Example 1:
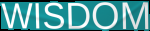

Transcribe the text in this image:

WISDOM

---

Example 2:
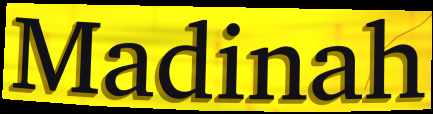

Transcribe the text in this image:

Madinah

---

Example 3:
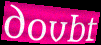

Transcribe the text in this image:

doubt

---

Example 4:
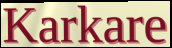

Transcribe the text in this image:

Karkare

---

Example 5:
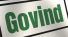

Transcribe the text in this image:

Govind